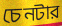
চেনটার